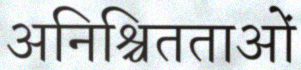
अनिश्चितताओं